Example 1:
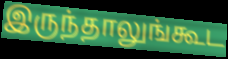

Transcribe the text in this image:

இருந்தாலுங்கூட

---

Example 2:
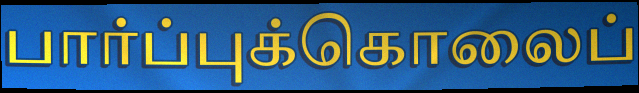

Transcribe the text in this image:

பார்ப்புக்கொலைப்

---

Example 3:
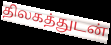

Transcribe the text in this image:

திலகத்துடன்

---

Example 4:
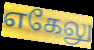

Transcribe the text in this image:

எகேலு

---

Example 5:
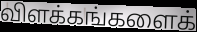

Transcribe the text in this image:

விளக்கங்களைக்